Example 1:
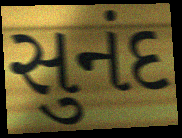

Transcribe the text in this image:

સુનંદ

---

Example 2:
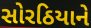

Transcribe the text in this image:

સોરઠિયાને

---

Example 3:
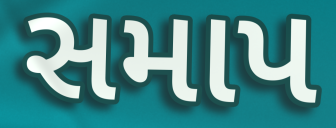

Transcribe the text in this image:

સમાપ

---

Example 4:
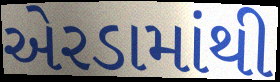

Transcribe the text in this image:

એરડામાંથી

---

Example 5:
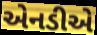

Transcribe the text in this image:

એનડીએ